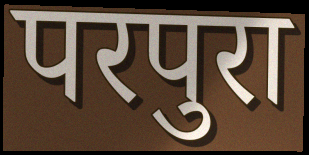
परपुरा